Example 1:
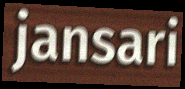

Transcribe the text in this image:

jansari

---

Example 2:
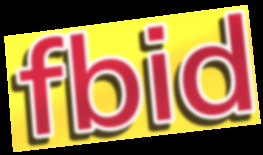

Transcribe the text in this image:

fbid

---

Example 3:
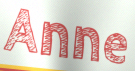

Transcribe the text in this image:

Anne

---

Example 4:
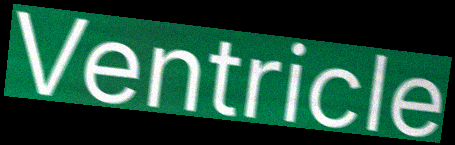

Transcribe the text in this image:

Ventricle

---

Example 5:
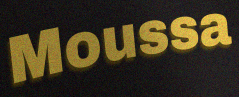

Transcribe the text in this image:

Moussa